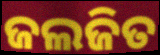
ଜଲଜିତ